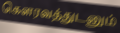
கௌரவத்துடனும்